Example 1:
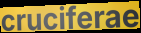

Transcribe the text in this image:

cruciferae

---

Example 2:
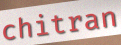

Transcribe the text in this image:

chitran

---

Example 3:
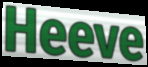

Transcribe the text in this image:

Heeve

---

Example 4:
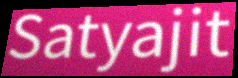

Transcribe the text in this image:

Satyajit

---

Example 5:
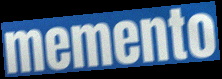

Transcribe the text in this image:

memento